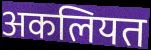
अकलियत